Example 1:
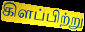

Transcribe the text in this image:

கிளப்பிற்று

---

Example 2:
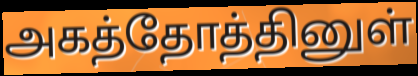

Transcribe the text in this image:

அகத்தோத்தினுள்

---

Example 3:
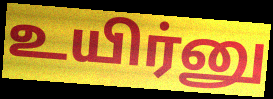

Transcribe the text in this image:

உயிர்னு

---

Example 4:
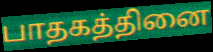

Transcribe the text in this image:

பாதகத்தினை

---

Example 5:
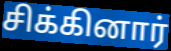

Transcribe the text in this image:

சிக்கினார்